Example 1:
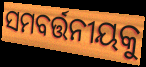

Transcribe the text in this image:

ସମବର୍ତ୍ତନୀୟକୁ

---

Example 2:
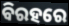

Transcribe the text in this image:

ବିରହରେ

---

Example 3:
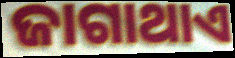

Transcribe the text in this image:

ଜାଗାଥାଏ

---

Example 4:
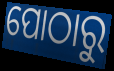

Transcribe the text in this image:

ପୋଠାରୁ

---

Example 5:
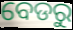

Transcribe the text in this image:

ବେଡରୁ